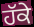
ਹੱਕੇ